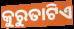
କୁରୁତାଟିଏ